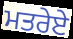
ਮਤਰੇਏ